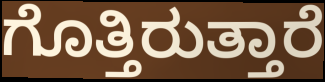
ಗೊತ್ತಿರುತ್ತಾರೆ